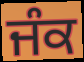
ਜੰਕ